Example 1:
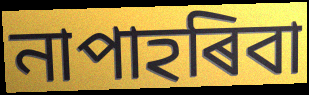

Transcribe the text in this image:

নাপাহৰিবা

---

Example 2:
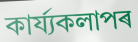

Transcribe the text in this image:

কাৰ্য্যকলাপৰ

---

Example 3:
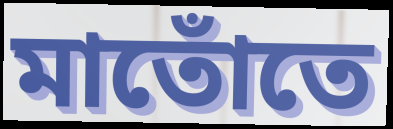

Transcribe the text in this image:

মাতোঁতে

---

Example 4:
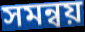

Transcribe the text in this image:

সমন্বয়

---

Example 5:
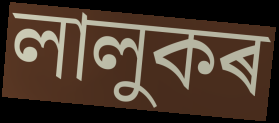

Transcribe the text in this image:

লালুকৰ